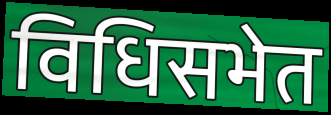
विधिसभेत